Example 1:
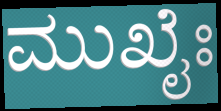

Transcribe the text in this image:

ಮುಖೈಃ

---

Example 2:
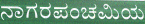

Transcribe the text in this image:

ನಾಗರಪಂಚಮಿಯ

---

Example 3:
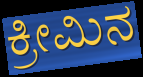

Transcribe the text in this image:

ಕ್ರೀಮಿನ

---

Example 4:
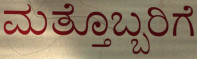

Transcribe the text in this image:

ಮತ್ತೊಬ್ಬರಿಗೆ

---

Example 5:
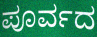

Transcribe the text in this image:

ಪೂರ್ವದ